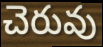
చెరువు